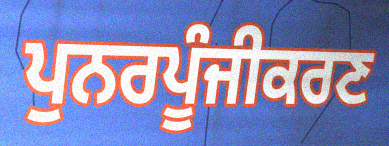
ਪੁਨਰਪੂੰਜੀਕਰਣ